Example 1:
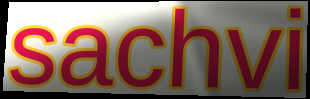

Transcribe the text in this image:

sachvi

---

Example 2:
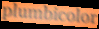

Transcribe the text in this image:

plumbicolor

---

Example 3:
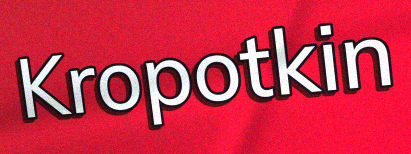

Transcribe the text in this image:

Kropotkin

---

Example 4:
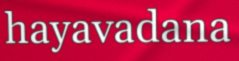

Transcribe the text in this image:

hayavadana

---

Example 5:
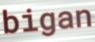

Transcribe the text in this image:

bigan